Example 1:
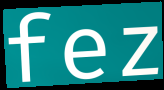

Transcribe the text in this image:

fez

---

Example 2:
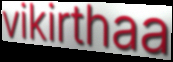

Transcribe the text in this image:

vikirthaa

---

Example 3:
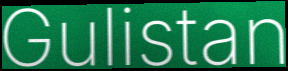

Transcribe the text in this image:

Gulistan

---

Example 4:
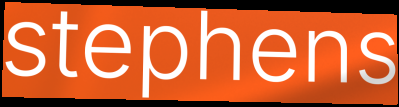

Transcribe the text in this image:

stephens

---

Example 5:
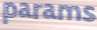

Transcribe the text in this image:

params